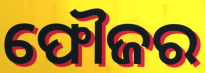
ଫୌଜର